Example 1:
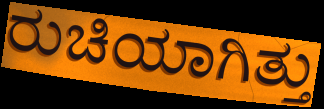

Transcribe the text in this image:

ರುಚಿಯಾಗಿತ್ತು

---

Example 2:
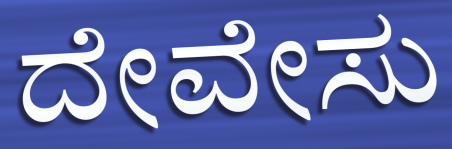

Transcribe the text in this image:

ದೇವೇಸು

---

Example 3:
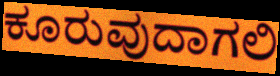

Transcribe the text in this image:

ಕೂರುವುದಾಗಲಿ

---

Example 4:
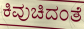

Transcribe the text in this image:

ಕಿವುಚಿದಂತೆ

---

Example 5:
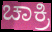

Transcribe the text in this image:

ಚಾಕ್ರಿ